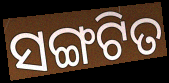
ସଙ୍ଗଟିତ